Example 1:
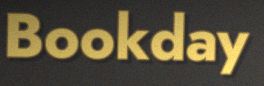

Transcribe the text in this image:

Bookday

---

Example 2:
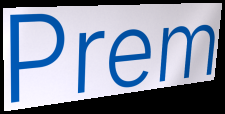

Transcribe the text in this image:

Prem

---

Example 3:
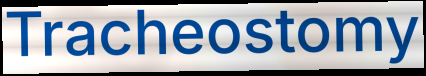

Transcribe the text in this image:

Tracheostomy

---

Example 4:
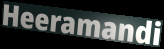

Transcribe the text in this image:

Heeramandi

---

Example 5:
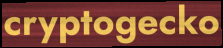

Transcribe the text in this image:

cryptogecko